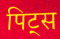
पिट्स